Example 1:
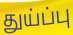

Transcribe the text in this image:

துய்ப்பு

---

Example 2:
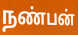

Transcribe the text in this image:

நண்பன்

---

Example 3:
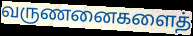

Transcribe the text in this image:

வருணனைகளைத்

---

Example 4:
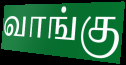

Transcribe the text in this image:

வாங்கு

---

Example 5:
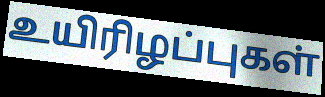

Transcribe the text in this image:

உயிரிழப்புகள்